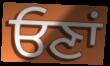
ਓਣਾਂ